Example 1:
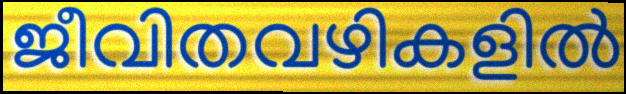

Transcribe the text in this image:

ജീവിതവഴികളിൽ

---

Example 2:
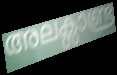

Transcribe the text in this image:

അലക്സാണ്ട്ര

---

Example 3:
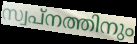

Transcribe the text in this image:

സ്വപ്നത്തിനും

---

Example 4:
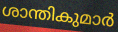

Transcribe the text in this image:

ശാന്തികുമാർ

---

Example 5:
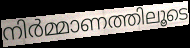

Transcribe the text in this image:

നിർമ്മാണത്തിലൂടെ